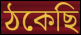
ঠকেছি